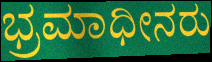
ಭ್ರಮಾಧೀನರು